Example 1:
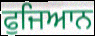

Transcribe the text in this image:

ਫੁਜਿਆਨ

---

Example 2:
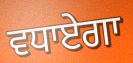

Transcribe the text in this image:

ਵਧਾਏਗਾ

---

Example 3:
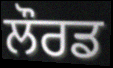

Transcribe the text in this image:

ਲੌਰਡ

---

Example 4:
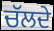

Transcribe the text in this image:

ਚੱਲਦੇ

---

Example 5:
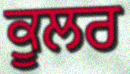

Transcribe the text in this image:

ਕੂਲਰ